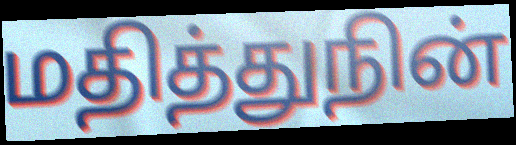
மதித்துநின்